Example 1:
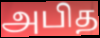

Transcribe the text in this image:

அபித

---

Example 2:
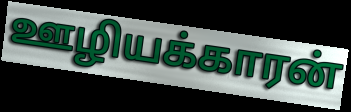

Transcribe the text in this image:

ஊழியக்காரன்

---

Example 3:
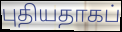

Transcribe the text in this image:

புதியதாகப்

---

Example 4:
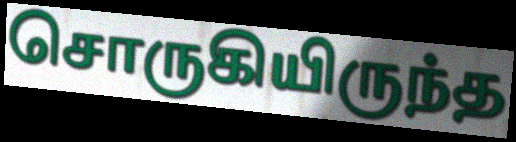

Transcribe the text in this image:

சொருகியிருந்த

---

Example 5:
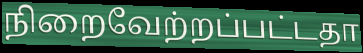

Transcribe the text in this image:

நிறைவேற்றப்பட்டதா